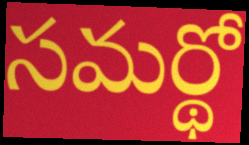
సమర్థో